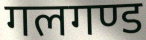
गलगण्ड